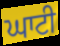
ਘਾਟੀ